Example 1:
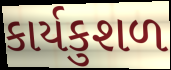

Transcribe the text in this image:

કાર્યકુશળ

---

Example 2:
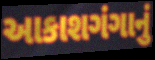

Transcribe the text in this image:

આકાશગંગાનું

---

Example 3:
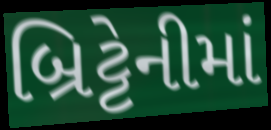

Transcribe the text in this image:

બ્રિટ્ટેનીમાં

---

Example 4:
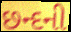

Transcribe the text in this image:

છન્દની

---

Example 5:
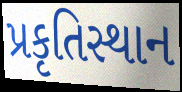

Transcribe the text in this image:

પ્રકૃતિસ્થાન